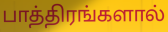
பாத்திரங்களால்